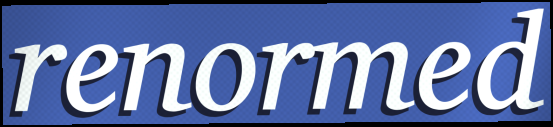
renormed